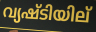
വ്യഷ്ടിയില്